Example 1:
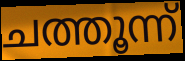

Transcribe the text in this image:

ചത്തൂന്ന്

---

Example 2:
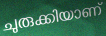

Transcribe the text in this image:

ചുരുക്കിയാണ്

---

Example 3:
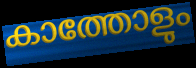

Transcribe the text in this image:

കാത്തോളും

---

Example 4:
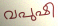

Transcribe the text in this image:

വപുഷി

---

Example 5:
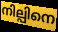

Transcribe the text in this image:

നില്പിനെ